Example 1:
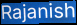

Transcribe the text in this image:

Rajanish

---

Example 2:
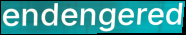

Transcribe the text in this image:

endengered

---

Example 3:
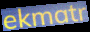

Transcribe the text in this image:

ekmatr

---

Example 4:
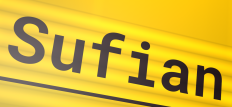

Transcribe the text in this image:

Sufian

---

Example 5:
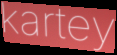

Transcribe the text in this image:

kartey